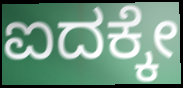
ಐದಕ್ಕೇ